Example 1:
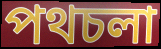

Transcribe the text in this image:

পথচলা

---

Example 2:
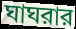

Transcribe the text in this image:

ঘাঘরার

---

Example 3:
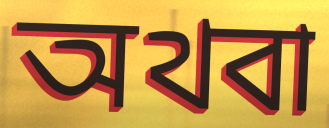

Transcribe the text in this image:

অথবা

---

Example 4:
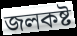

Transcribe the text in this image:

জলকষ্ট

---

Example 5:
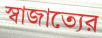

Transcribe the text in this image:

স্বাজাত্যের